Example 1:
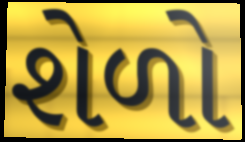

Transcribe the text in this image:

શેળો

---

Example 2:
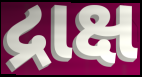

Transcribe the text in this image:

દ્રાક્ષ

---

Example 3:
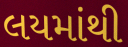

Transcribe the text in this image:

લયમાંથી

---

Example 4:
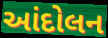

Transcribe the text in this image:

આંદોલન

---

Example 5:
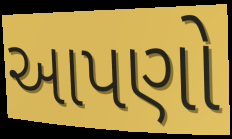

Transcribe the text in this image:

આપણો